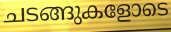
ചടങ്ങുകളോടെ